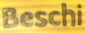
Beschi